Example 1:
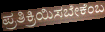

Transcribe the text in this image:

ಪ್ರತಿಕ್ರಿಯಿಸಬೇಕೆಂಬ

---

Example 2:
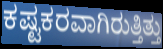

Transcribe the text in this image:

ಕಷ್ಟಕರವಾಗಿರುತ್ತಿತ್ತು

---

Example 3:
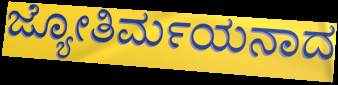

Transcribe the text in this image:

ಜ್ಯೋತಿರ್ಮಯನಾದ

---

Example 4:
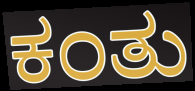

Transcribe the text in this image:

ಕಂತು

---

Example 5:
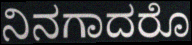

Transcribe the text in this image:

ನಿನಗಾದರೊ